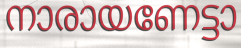
നാരായണേട്ടാ